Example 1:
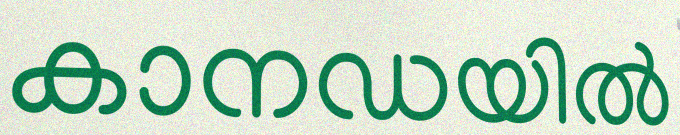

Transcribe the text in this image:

കാനഡയിൽ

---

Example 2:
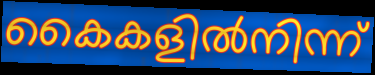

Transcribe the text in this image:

കൈകളിൽനിന്ന്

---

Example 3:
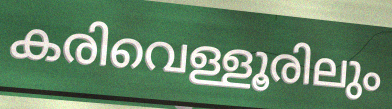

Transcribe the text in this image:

കരിവെള്ളൂരിലും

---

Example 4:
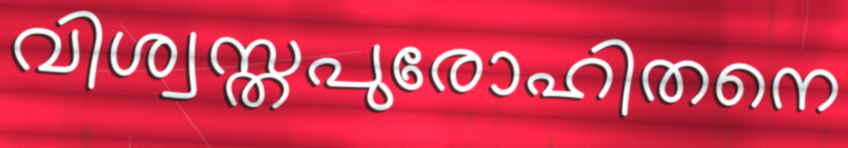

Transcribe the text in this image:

വിശ്വസ്തപുരോഹിതനെ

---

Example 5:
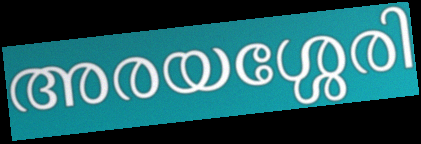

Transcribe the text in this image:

അരയശ്ശേരി